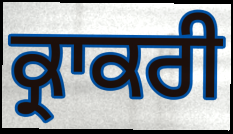
ਕ੍ਰਾਕਰੀ